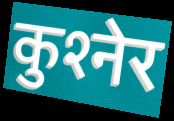
कुश्नेर